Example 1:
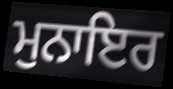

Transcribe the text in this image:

ਮੁਨਾਇਰ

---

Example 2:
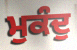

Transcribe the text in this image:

ਮੁਕੰਦੁ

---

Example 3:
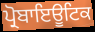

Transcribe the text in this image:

ਪ੍ਰੋਬਾਇਊਟਿਕ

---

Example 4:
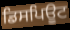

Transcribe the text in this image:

ਡਿਸਪਿਊਟ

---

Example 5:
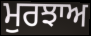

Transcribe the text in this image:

ਮੁਰਝਾਅ